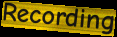
Recording